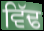
ਵਿੱਢ